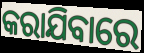
କରାଯିବାରେ